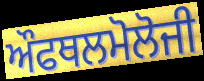
ਔਫਥਲਮੋਲੋਜੀ